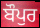
ਬੌਪੁਰ